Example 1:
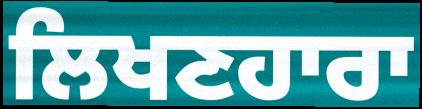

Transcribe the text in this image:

ਲਿਖਣਹਾਰਾ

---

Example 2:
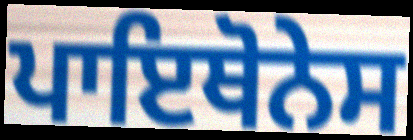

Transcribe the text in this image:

ਪਾਇਥੋਨੇਸ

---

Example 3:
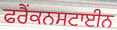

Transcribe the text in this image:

ਫਰੈਂਕਨਸਟਾਈਨ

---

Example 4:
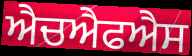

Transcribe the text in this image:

ਐਚਐਫਐਸ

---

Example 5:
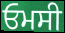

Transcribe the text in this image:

ਓਮਸੀ